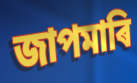
জাপমাৰি